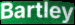
Bartley